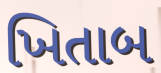
ખિતાબ